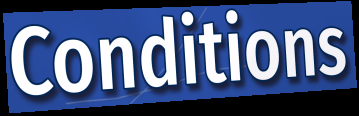
Conditions